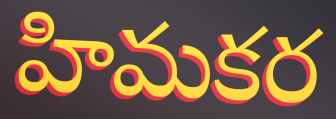
హిమకర